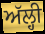
ਅੱਲ੍ਹੀ